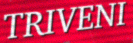
TRIVENI